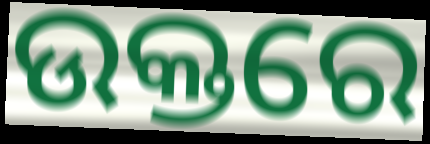
ଉକ୍ତରେ